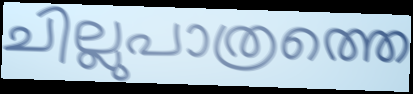
ചില്ലുപാത്രത്തെ